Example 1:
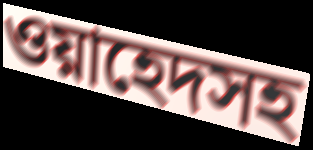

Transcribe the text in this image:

ওয়াহেদসহ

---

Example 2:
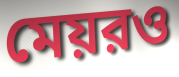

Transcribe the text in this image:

মেয়রও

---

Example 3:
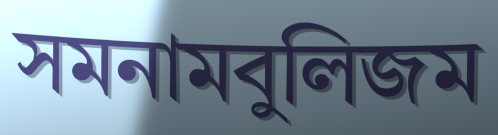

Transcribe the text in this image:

সমনামবুলিজম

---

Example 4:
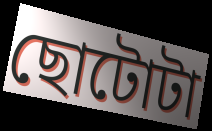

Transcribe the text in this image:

ছোটোটা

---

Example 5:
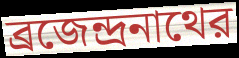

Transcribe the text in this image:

ব্রজেন্দ্রনাথের